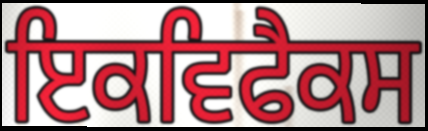
ਇਕਵਿਫੈਕਸ